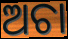
ଅଚା